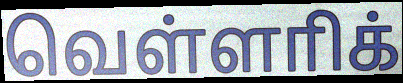
வெள்ளரிக்